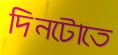
দিনটোতে